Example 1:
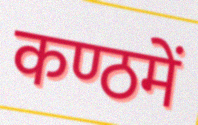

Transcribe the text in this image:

कण्ठमें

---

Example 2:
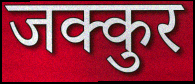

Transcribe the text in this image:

जक्कुर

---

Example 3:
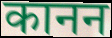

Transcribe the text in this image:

कानन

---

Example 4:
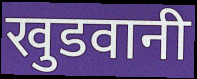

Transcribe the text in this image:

खुडवानी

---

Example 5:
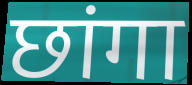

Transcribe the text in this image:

छांगा